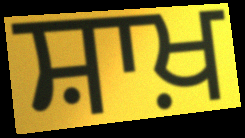
ਸ਼ਾਖ਼